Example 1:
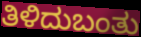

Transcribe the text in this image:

ತಿಳಿದುಬಂತು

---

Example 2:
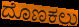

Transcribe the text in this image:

ದೊಣಕಲು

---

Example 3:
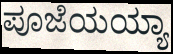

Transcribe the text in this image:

ಪೂಜೆಯಯ್ಯಾ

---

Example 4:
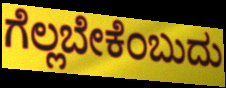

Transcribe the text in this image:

ಗೆಲ್ಲಬೇಕೆಂಬುದು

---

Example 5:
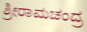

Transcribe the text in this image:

ಶ್ರೀರಾಮಚಂದ್ರ